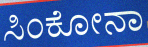
ಸಿಂಕೋನಾ